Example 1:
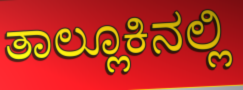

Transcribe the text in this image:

ತಾಲ್ಲೂಕಿನಲ್ಲಿ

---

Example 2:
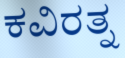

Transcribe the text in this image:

ಕವಿರತ್ನ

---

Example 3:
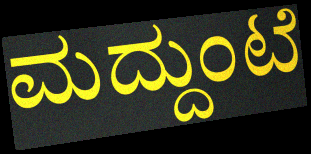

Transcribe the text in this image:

ಮದ್ದುಂಟೆ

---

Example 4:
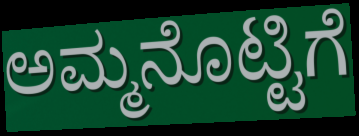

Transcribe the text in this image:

ಅಮ್ಮನೊಟ್ಟಿಗೆ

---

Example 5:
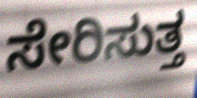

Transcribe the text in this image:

ಸೇರಿಸುತ್ತ